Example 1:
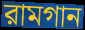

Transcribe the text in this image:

রামগান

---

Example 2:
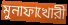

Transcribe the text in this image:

মুনাফাখোরী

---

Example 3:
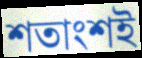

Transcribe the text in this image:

শতাংশই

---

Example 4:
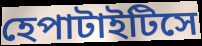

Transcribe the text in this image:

হেপাটাইটিসে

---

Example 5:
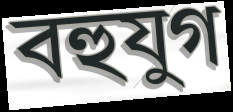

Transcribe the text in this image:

বহুযুগ